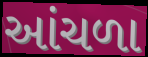
આંચળા